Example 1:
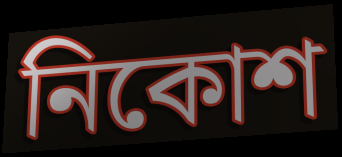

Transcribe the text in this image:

নিকোশ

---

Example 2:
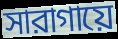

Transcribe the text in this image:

সারাগায়ে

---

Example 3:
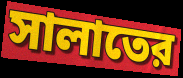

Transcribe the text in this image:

সালাতের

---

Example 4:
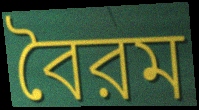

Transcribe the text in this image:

বৈরম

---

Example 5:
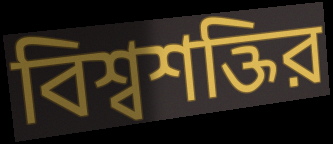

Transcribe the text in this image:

বিশ্বশক্তির